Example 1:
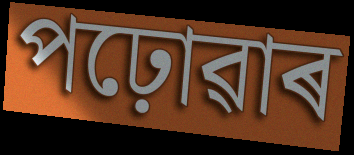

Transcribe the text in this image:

পঢ়োৱাৰ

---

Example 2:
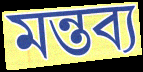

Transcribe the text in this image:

মন্তব্য়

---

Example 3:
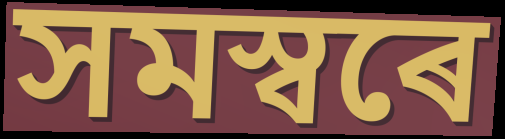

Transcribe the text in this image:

সমস্বৰে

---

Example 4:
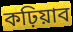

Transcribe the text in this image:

কঢ়িয়াব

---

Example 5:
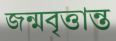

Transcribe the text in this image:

জন্মবৃত্তান্ত